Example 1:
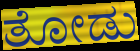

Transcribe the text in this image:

ತೋಡು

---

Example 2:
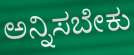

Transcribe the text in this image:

ಅನ್ನಿಸಬೇಕು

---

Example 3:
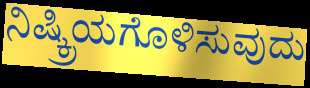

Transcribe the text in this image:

ನಿಷ್ಕ್ರಿಯಗೊಳಿಸುವುದು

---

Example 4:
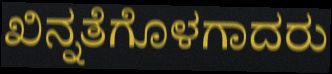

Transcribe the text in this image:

ಖಿನ್ನತೆಗೊಳಗಾದರು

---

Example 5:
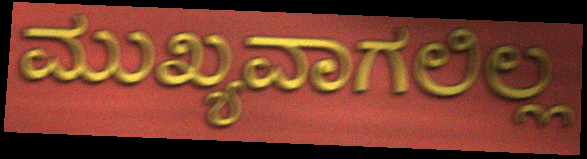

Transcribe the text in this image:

ಮುಖ್ಯವಾಗಲಿಲ್ಲ